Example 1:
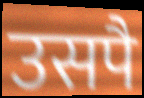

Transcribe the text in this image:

उसपै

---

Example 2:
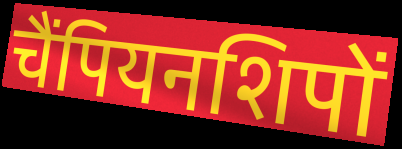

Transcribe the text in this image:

चैंपियनशिपों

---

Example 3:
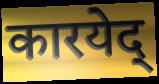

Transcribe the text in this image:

कारयेद्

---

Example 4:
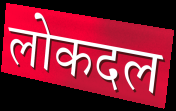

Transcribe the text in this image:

लोकदल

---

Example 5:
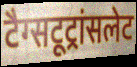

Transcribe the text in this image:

टैग्सटूट्रांसलेट